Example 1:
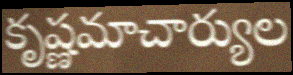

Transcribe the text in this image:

కృష్ణమాచార్యుల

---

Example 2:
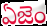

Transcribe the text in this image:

ఏజెం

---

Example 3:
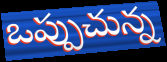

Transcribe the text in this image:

ఒప్పుచున్న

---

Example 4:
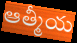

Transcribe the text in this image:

ఆత్మీయ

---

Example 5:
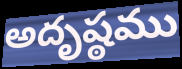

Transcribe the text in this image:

అదృష్ఠము